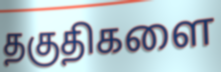
தகுதிகளை